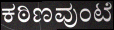
ಕಠಿಣವುಂಟೆ